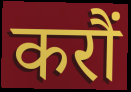
करौं